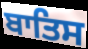
ਬਾਤਿਸ